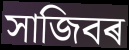
সাজিবৰ